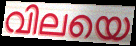
വിലയെ